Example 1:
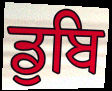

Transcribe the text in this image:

ਡੁਬਿ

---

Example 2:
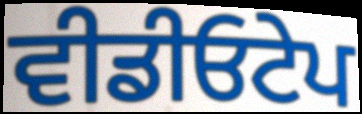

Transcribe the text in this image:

ਵੀਡੀਓਟੇਪ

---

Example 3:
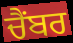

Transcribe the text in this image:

ਚੈਂਬਰ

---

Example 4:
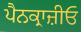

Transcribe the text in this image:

ਪੈਨਕ੍ਰਾਜ਼ੀਓ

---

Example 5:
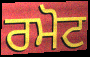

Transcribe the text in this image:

ਰਮੋਟ